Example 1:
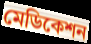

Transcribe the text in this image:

মেডিকেশন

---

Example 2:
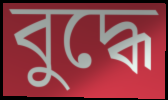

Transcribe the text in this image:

বুদ্ধে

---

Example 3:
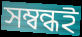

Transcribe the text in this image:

সম্বন্ধই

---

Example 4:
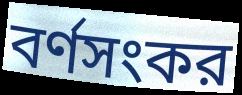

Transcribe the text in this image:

বর্ণসংকর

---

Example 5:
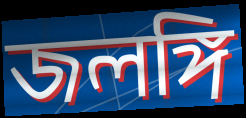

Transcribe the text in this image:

জলঙ্গি